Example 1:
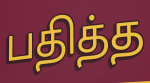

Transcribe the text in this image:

பதித்த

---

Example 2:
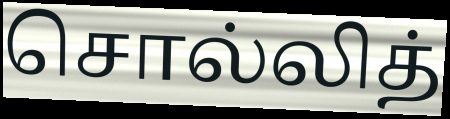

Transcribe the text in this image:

சொல்லித்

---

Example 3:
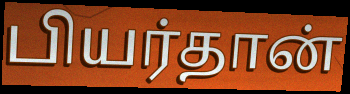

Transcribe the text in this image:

பியர்தான்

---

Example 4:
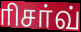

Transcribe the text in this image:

ரிசர்வ்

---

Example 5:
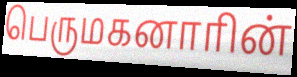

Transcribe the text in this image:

பெருமகனாரின்